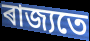
ৰাজ্যতে